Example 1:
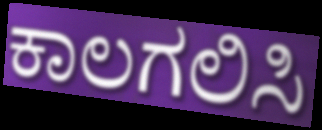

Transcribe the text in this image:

ಕಾಲಗಲಿಸಿ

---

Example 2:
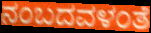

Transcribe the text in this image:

ನಂಬದವಳಂತೆ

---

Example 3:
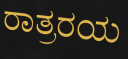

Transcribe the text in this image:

ರಾತ್ರರಯ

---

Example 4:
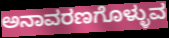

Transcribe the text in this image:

ಅನಾವರಣಗೊಳ್ಳುವ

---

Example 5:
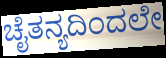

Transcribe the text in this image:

ಚೈತನ್ಯದಿಂದಲೇ